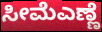
ಸೀಮೆಎಣ್ಣೆ